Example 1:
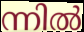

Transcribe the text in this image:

ന്നിൽ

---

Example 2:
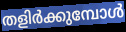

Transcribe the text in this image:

തളിർക്കുമ്പോൾ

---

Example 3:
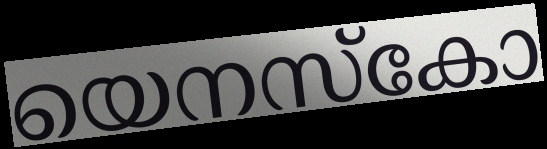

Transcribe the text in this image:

യെനസ്കോ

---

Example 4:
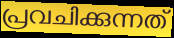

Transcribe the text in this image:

പ്രവചിക്കുന്നത്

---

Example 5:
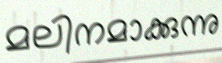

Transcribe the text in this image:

മലിനമാക്കുന്നു